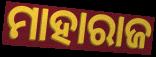
ମାହାରାଜ